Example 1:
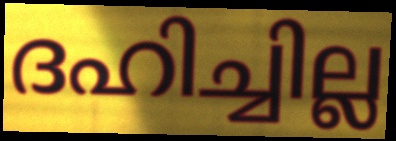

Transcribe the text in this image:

ദഹിച്ചില്ല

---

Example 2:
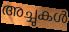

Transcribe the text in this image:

അച്ചുകൾ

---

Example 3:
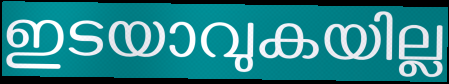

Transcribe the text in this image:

ഇടയാവുകയില്ല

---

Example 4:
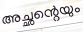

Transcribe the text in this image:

അച്ഛന്റെയും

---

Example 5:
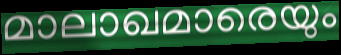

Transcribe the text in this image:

മാലാഖമാരെയും